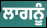
ਲਾਗਨੂੰ